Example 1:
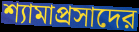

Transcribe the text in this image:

শ্যামাপ্রসাদের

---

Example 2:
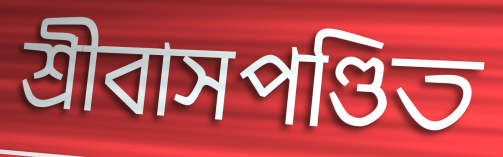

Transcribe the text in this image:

শ্রীবাসপণ্ডিত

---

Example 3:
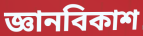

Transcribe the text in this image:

জ্ঞানবিকাশ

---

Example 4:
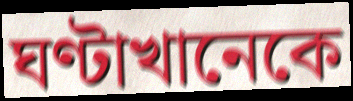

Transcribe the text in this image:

ঘণ্টাখানেকে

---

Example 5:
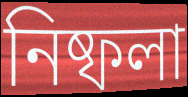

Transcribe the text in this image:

নিষ্ফলা